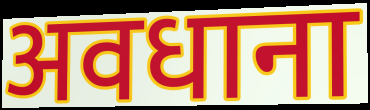
अवधाना